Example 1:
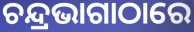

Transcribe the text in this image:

ଚନ୍ଦ୍ରଭାଗାଠାରେ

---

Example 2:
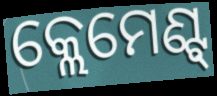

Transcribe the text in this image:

କ୍ଲେମେଣ୍ଟ୍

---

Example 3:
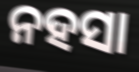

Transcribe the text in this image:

ନହସା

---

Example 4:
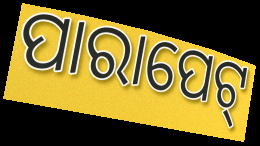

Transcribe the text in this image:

ପାରାପେଟ୍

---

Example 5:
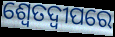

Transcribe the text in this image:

ଶ୍ୱେତଦ୍ୱୀପରେ